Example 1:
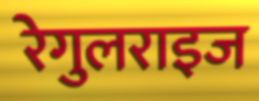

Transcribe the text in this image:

रेगुलराइज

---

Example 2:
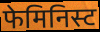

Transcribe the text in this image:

फेमिनिस्ट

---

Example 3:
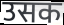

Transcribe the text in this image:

उसक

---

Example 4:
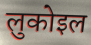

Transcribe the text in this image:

लुकोइल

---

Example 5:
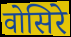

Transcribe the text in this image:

वोसिरे